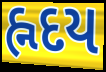
હ્નદય